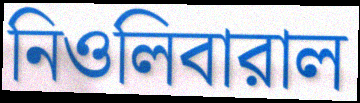
নিওলিবারাল